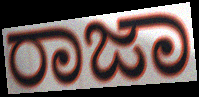
ರಾಜಾ